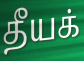
தீயக்